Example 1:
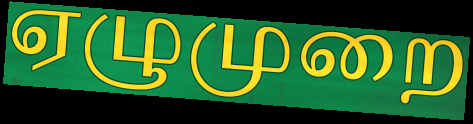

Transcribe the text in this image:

ஏழுமுறை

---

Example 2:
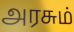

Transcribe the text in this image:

அரசும்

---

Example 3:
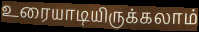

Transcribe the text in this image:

உரையாடியிருக்கலாம்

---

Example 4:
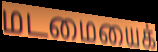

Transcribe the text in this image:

மடமையைக்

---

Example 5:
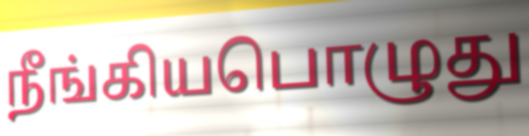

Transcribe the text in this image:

நீங்கியபொழுது